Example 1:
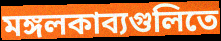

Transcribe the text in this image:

মঙ্গলকাব্যগুলিতে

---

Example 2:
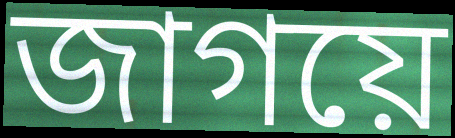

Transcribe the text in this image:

জাগয়ে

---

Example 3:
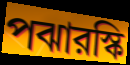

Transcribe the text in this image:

পঝারস্কি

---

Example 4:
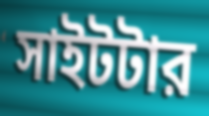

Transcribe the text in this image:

সাইটটার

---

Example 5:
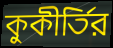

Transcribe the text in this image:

কুকীর্তির